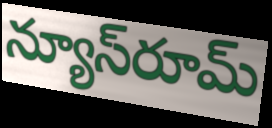
న్యూస్‌రూమ్